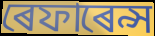
ৰেফাৰেন্স